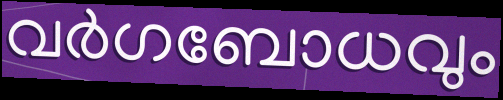
വർഗബോധവും